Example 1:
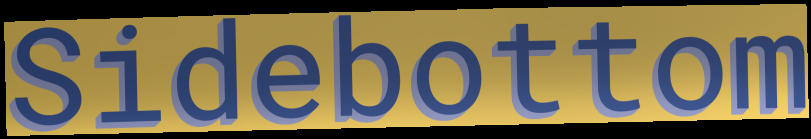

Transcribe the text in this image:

Sidebottom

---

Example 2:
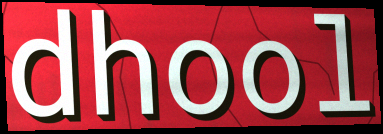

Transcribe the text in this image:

dhool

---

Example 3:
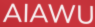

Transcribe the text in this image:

AIAWU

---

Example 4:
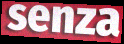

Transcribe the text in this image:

senza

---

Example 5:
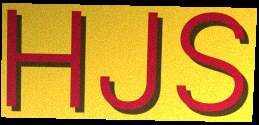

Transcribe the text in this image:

HJS